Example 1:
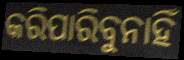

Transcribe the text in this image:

କରିପାରିବୁନାହିଁ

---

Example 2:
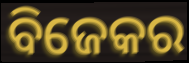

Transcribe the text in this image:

ବିଜେକର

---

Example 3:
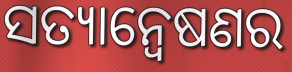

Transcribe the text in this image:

ସତ୍ୟାନ୍ୱେଷଣର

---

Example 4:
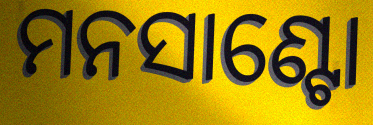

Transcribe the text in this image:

ମନସାଣ୍ଟୋ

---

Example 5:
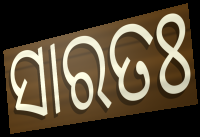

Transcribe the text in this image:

ସାରତଃ